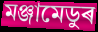
মঞ্জামেডুৰ